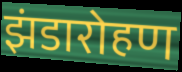
झंडारोहण